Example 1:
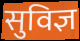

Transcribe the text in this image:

सुविज्ञ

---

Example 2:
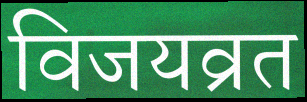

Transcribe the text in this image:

विजयव्रत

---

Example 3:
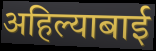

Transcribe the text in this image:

अहिल्याबाई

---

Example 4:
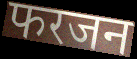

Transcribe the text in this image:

फरजन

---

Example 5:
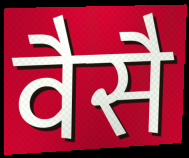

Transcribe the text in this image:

वैसै